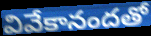
వివేకానందతో